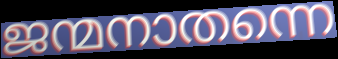
ജന്മനാതന്നെ